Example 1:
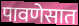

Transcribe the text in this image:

पावणेसात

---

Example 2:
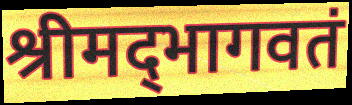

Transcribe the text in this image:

श्रीमद्‌भागवतं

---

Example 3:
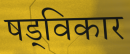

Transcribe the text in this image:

षड्‌विकार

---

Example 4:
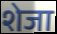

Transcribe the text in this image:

शेजा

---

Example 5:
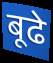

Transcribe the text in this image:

बूढे